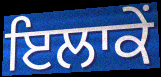
ਇਲਾਕੇਂ